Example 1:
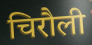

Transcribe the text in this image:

चिरौली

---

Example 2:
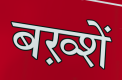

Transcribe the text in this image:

बख़्शें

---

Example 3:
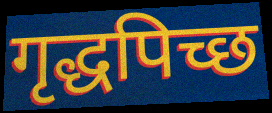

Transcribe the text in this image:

गृद्धपिच्छ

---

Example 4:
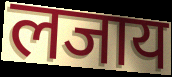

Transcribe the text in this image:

लजाय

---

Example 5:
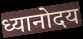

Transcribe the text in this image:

ध्यानोदय